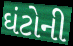
ઘંટોની